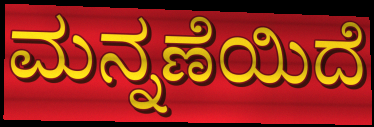
ಮನ್ನಣೆಯಿದೆ